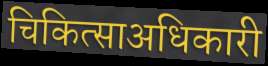
चिकित्साअधिकारी